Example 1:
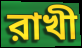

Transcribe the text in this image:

রাখী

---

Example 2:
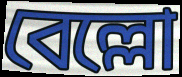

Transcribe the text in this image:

বেল্লো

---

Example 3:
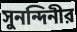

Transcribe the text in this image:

সুনন্দিনীর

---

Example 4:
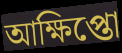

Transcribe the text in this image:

আক্ষিপ্তো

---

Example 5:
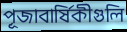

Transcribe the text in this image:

পূজাবার্ষিকীগুলি